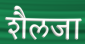
शैलजा